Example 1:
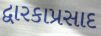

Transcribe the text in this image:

દ્વારકાપ્રસાદ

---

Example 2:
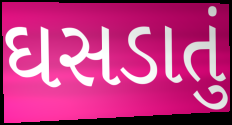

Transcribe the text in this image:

ઘસડાતું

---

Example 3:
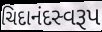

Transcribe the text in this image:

ચિદાનંદસ્વરૂપ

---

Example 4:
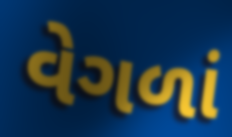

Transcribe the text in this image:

વેગળાં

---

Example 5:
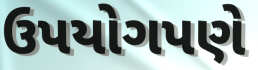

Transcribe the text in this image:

ઉપયોગપણે